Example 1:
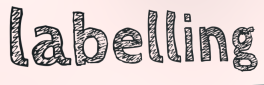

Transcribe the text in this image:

labelling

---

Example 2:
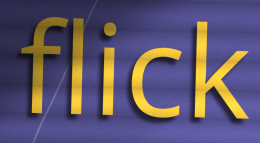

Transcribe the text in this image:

flick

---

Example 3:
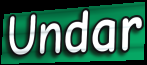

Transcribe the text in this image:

Undar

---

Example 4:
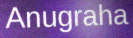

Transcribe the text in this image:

Anugraha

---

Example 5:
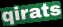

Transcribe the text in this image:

qirats